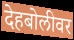
देहबोलीवर